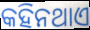
କହିନଥାଏ